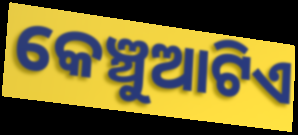
କେଞ୍ଚୁଆଟିଏ